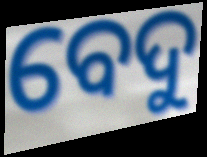
ବେଦୁ